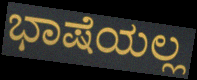
ಭಾಷೆಯಲ್ಲ